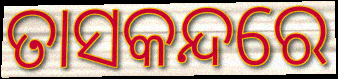
ତାସକନ୍ଦରେ